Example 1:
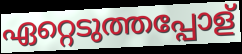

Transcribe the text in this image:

ഏറ്റെടുത്തപ്പോള്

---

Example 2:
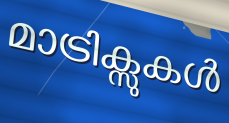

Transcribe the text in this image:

മാട്രിക്സുകൾ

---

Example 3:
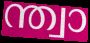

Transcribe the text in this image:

ന്ത്വാ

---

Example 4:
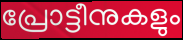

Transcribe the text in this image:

പ്രോട്ടീനുകളും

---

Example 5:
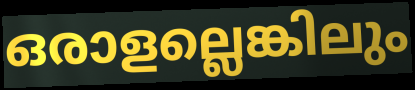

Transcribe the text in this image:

ഒരാളല്ലെങ്കിലും